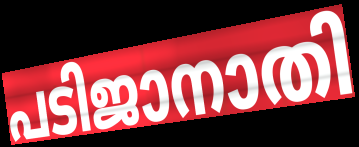
പടിജാനാതി